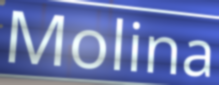
Molina